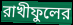
রাখীফুলের